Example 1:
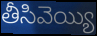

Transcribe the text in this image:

తీసివెయ్యి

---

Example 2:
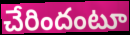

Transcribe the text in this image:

చేరిందంటూ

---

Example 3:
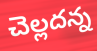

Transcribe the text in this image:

చెల్లదన్న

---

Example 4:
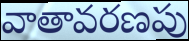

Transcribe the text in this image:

వాతావరణపు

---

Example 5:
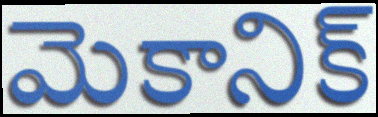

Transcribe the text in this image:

మెకానిక్